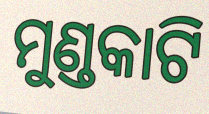
ମୁଣ୍ଡକାଟି